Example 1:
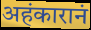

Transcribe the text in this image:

अहंकारानं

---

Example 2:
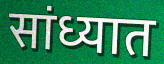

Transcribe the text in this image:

सांध्यात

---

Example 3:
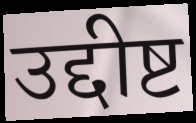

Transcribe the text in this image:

उद्दीष्ट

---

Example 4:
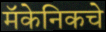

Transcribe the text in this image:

मॅकेनिकचे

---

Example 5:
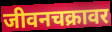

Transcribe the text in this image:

जीवनचक्रावर